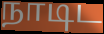
நாடிட